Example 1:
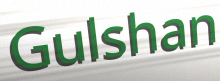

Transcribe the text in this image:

Gulshan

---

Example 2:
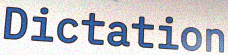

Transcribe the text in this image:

Dictation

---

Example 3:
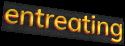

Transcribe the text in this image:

entreating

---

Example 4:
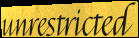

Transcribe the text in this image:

unrestricted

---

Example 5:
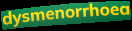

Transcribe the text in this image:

dysmenorrhoea